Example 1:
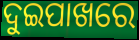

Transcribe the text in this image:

ଦୁଇପାଖରେ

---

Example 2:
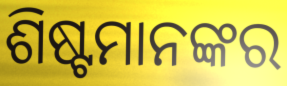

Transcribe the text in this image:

ଶିଷ୍ଟମାନଙ୍କର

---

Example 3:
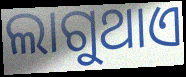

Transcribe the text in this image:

ଲାଗୁଥାଏ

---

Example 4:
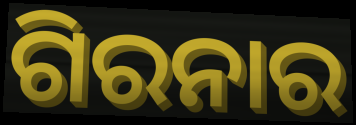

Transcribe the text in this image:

ଗିରନାର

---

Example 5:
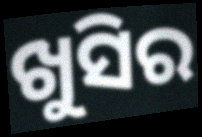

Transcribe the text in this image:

ଖୁସିର